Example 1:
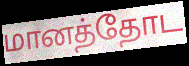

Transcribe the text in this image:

மானத்தோட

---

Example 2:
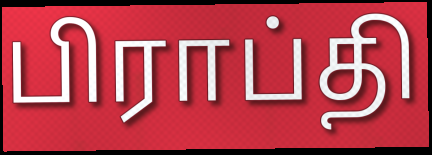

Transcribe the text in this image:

பிராப்தி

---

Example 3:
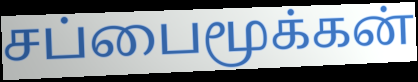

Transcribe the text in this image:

சப்பைமூக்கன்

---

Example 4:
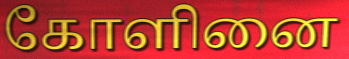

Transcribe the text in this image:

கோளினை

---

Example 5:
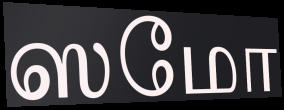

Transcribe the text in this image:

ஸமோ